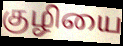
குழியை